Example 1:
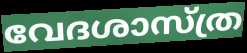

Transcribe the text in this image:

വേദശാസ്ത്ര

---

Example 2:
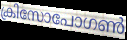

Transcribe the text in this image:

ക്രിസോപോഗൺ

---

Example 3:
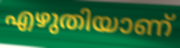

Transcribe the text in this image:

എഴുതിയാണ്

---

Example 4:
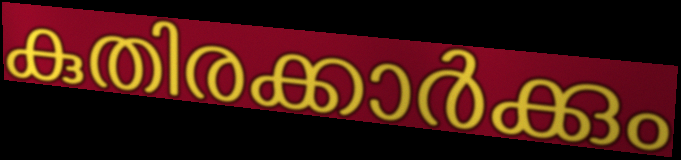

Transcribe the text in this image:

കുതിരക്കാർക്കും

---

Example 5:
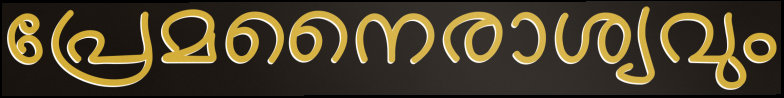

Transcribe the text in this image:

പ്രേമനൈരാശ്യവും